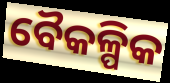
ବୈକଳ୍ପିକ